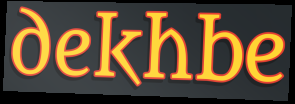
dekhbe